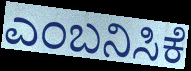
ಎಂಬನಿಸಿಕೆ